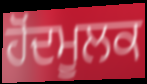
ਹੋਂਦਮੂਲਕ